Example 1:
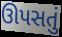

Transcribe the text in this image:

ઊપસતું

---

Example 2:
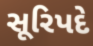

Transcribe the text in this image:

સૂરિપદે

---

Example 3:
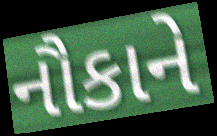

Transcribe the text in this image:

નૌકાને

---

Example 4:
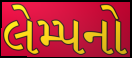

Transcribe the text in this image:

લેમ્પનો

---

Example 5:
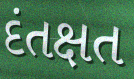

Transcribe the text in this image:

દંતક્ષત